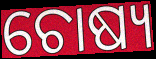
ଚୋଷ୍ୟ